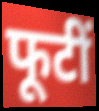
फूटीं